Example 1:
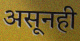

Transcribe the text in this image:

असूनही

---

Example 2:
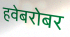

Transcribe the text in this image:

हवेबरोबर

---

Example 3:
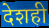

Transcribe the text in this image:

देशही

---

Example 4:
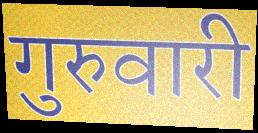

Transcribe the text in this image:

गुरुवारी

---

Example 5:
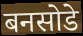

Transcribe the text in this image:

बनसोडे